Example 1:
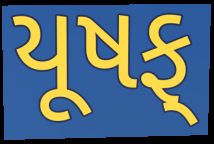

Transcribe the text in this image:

યૂષફ્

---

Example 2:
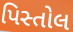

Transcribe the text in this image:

પિસ્તોલ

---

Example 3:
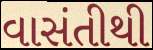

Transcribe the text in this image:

વાસંતીથી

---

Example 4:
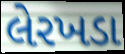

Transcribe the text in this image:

લેરખડા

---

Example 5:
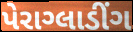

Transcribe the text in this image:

પેરાગ્લાડીંગ